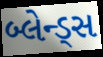
બ્લેન્ડ્સ